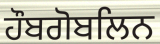
ਹੌਬਗੋਬਲਿਨ